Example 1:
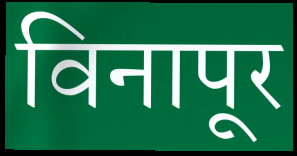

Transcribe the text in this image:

विनापूर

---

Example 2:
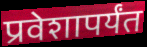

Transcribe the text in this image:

प्रवेशापर्यंत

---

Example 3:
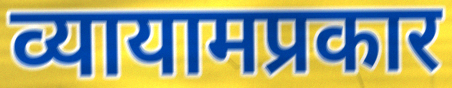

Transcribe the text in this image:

व्यायामप्रकार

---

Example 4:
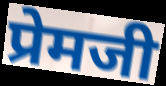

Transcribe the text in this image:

प्रेमजी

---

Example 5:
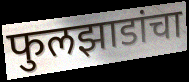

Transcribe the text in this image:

फुलझाडांचा